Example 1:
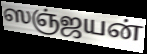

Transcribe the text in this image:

ஸஞ்ஜயன்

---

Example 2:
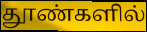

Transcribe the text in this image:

தூண்களில்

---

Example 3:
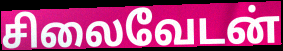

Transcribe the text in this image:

சிலைவேடன்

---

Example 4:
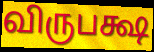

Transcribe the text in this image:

விருபக்ஷ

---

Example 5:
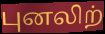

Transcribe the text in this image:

புனலிற்